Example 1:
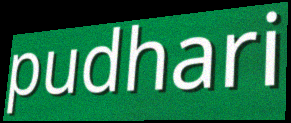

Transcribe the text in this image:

pudhari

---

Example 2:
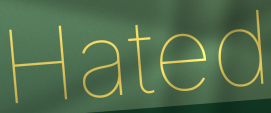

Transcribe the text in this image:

Hated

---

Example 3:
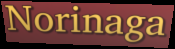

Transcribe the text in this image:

Norinaga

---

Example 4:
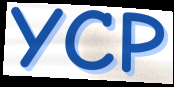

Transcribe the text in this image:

YCP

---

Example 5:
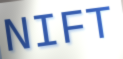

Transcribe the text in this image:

NIFT